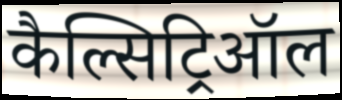
कैल्सिट्रिऑल